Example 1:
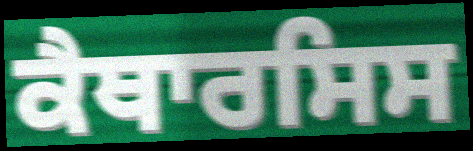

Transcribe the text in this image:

ਕੈਥਾਰਸਿਸ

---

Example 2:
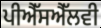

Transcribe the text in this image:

ਪੀਐੱਸਐੱਲਵੀ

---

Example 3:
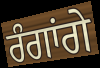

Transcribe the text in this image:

ਰੰਗਾਂਗੇ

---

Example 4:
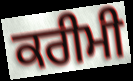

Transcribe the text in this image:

ਕਰੀਮੀ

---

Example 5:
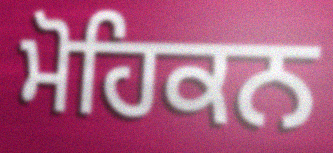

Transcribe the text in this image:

ਮੋਹਿਕਨ